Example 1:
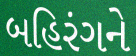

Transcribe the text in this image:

બહિરંગને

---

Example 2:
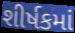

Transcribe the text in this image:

શીર્ષકમાં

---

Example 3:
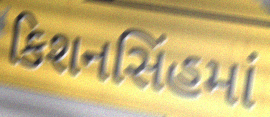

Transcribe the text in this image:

કિશનસિંહમાં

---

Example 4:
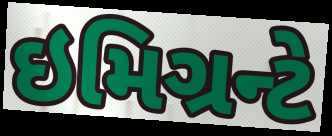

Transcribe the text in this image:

ઇમિગ્રન્ટે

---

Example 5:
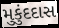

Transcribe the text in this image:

મુકુંદદાસ